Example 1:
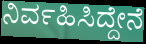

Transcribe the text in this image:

ನಿರ್ವಹಿಸಿದ್ದೇನೆ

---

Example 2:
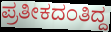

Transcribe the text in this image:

ಪ್ರತೀಕದಂತಿದ್ದ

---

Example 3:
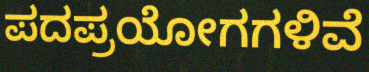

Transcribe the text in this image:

ಪದಪ್ರಯೋಗಗಳಿವೆ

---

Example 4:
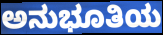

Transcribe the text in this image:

ಅನುಭೂತಿಯ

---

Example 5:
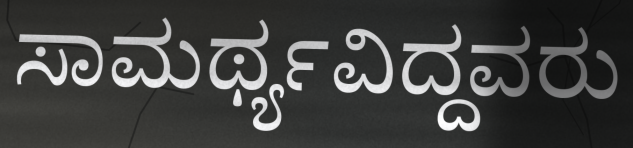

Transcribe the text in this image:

ಸಾಮರ್ಥ್ಯವಿದ್ದವರು